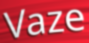
Vaze